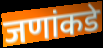
जणांकडे